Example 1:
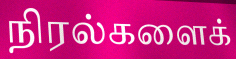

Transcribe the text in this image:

நிரல்களைக்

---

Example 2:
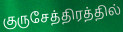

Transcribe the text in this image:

குருசேத்திரத்தில்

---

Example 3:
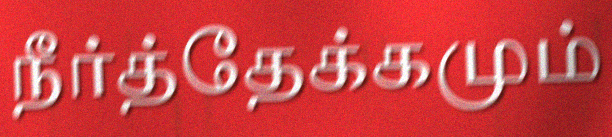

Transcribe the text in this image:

நீர்த்தேக்கமும்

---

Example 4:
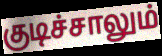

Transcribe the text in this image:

குடிச்சாலும்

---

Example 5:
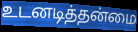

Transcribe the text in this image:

உடனடித்தன்மை